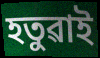
হতুৱাই